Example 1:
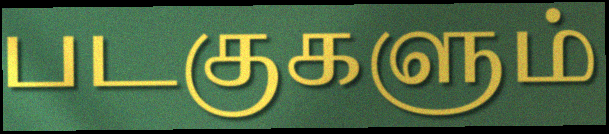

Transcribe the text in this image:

படகுகளும்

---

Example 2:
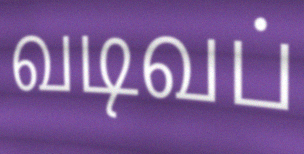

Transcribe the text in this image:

வடிவப்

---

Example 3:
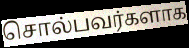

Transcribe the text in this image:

சொல்பவர்களாக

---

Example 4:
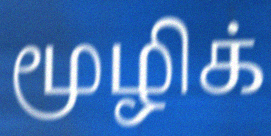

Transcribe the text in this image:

மூழிக்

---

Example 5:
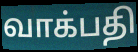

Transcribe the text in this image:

வாக்பதி